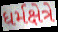
ધર્મક્ષેત્રે